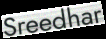
Sreedhar